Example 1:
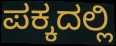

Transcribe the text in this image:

ಪಕ್ಕದಲ್ಲಿ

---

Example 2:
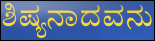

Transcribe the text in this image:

ಶಿಷ್ಯನಾದವನು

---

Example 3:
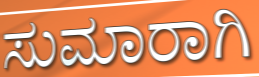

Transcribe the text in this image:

ಸುಮಾರಾಗಿ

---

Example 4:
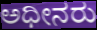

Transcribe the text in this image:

ಅಧೀನರು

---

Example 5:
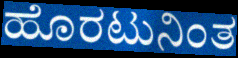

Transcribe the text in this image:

ಹೊರಟುನಿಂತ